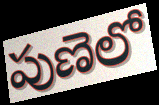
పుణెలో